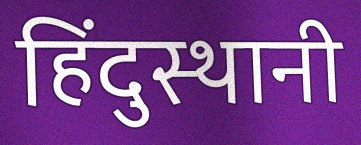
हिंदुस्थानी